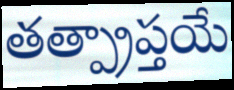
తత్ప్రాప్తయే